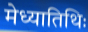
मेध्यातिथिः